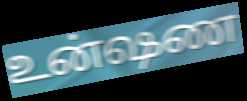
உன்ஷண